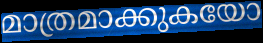
മാത്രമാക്കുകയോ